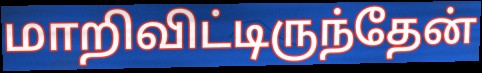
மாறிவிட்டிருந்தேன்